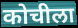
कोचीला